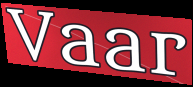
Vaar